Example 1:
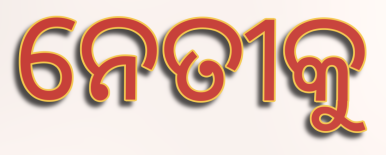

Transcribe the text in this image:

ନେତୀକୁ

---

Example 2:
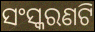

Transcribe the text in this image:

ସଂସ୍କରଣଟି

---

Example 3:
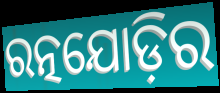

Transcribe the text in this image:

ରତ୍ନଯୋଡ଼ିର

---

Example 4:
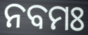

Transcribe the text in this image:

ନବମଃ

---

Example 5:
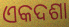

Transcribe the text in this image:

ଏକଦଶା